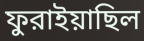
ফুরাইয়াছিল